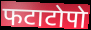
फटाटोपो